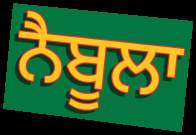
ਨੈਬੂਲਾ